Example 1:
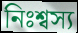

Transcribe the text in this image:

নিঃশ্বস্য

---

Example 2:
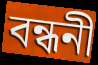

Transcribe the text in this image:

বন্ধনী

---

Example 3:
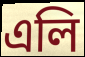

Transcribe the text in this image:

এলি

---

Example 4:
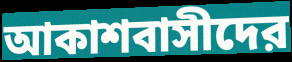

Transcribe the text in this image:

আকাশবাসীদের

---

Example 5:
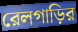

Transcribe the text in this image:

রেলগাড়ির